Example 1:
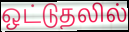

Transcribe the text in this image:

ஒட்டுதலில்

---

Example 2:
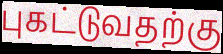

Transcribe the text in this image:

புகட்டுவதற்கு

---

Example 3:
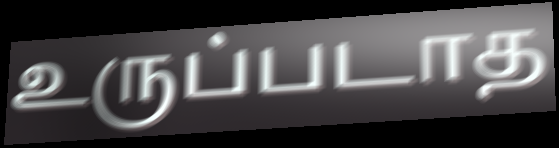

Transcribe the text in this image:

உருப்படாத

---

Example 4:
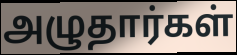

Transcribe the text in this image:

அழுதார்கள்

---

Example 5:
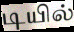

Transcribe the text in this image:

டியில்